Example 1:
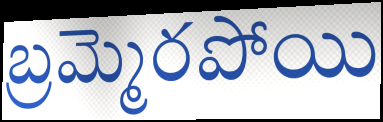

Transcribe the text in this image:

బ్రమ్మెరపోయి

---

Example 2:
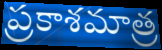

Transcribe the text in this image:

ప్రకాశమాత్ర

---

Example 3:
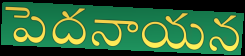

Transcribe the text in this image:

పెదనాయన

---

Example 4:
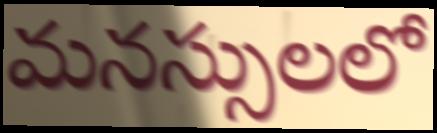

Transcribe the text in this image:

మనస్సులలో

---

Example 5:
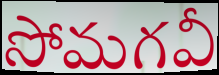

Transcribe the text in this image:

సోమగవీ